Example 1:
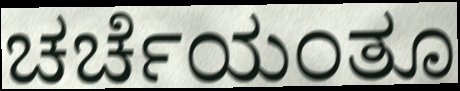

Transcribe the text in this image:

ಚರ್ಚೆಯಂತೂ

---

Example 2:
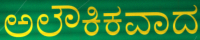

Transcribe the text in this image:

ಅಲೌಕಿಕವಾದ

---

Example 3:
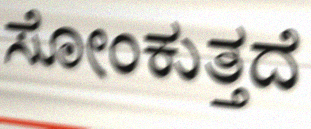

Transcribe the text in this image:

ಸೋಂಕುತ್ತದೆ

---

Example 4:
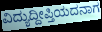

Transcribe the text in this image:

ವಿದ್ಯುದ್ದೀಪ್ತಿಯದನಾಗ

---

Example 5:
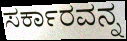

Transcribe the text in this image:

ಸರ್ಕಾರವನ್ನ